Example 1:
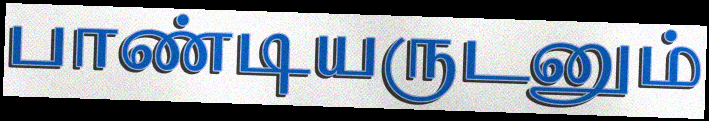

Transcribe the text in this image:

பாண்டியருடனும்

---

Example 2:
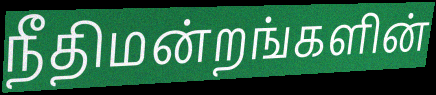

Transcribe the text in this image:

நீதிமன்றங்களின்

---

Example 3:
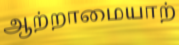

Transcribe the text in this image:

ஆற்றாமையாற்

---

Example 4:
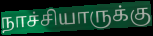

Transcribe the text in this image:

நாச்சியாருக்கு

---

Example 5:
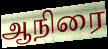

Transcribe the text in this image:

ஆநிரை